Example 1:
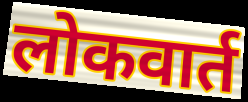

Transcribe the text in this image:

लोकवार्त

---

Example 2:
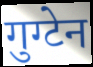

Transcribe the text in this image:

गुग्टेन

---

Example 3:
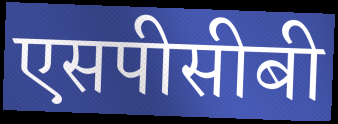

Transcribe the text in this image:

एसपीसीबी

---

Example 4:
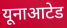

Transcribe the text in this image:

यूनाआटेड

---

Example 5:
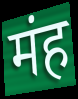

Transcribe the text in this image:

मंह